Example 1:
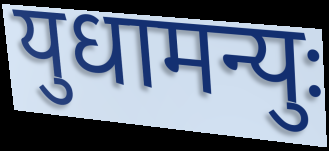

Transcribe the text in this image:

युधामन्युः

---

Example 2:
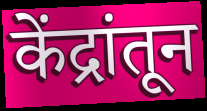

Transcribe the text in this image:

केंद्रांतून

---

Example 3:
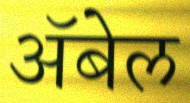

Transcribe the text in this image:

ॲबेल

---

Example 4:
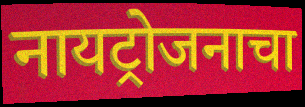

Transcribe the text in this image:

नायट्रोजनाचा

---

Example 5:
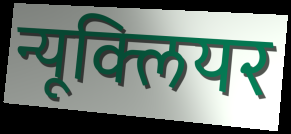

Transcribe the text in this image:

न्यूक्लियर